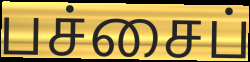
பச்சைப்